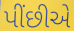
પીંછીએ